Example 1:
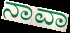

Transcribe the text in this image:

ನಾವಾ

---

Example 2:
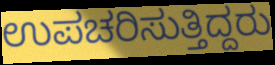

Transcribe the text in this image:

ಉಪಚರಿಸುತ್ತಿದ್ದರು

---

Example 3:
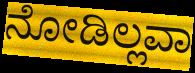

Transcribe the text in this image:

ನೋಡಿಲ್ಲವಾ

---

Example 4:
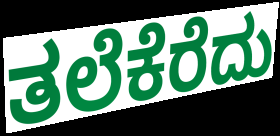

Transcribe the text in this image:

ತಲೆಕೆರೆದು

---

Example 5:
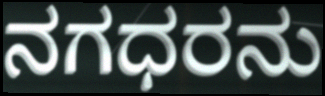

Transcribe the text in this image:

ನಗಧರನು